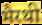
भैरथी